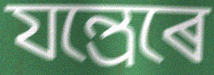
যন্ত্ৰেৰে